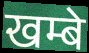
खम्बे